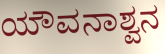
ಯೌವನಾಶ್ವನ